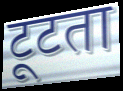
टूटता